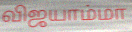
விஜயாம்மா